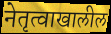
नेतृत्वाखालील